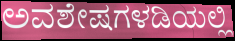
ಅವಶೇಷಗಳಡಿಯಲ್ಲಿ